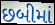
છબીમાં